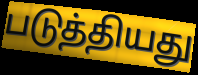
படுத்தியது